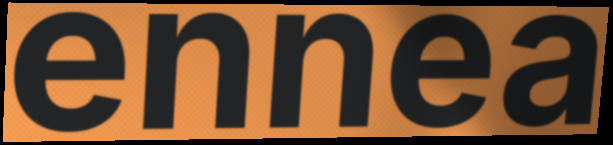
ennea